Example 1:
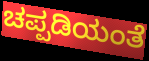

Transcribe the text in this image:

ಚಪ್ಪಡಿಯಂತೆ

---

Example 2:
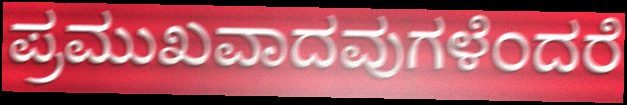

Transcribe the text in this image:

ಪ್ರಮುಖವಾದವುಗಳೆಂದರೆ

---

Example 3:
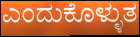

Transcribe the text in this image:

ಎಂದುಕೊಳ್ಳುತ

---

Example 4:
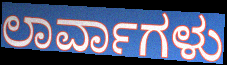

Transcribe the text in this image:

ಲಾರ್ವಾಗಳು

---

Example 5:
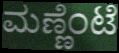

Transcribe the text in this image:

ಮಣ್ಣೆಂಟೆ